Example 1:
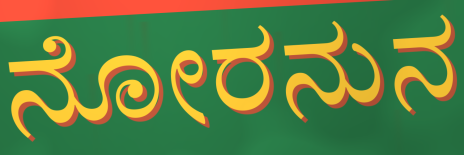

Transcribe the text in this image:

ನೋರನುನ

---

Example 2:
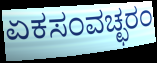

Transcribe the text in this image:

ಏಕಸಂವಚ್ಛರಂ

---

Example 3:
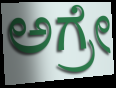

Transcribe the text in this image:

ಅಗ್ರೇ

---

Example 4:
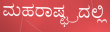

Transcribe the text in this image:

ಮಹರಾಷ್ಟ್ರದಲ್ಲಿ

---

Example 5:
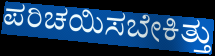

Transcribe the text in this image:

ಪರಿಚಯಿಸಬೇಕಿತ್ತು